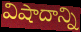
విషాదాన్ని